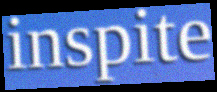
inspite